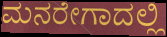
ಮನರೇಗಾದಲ್ಲಿ